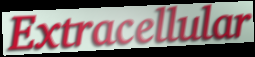
Extracellular